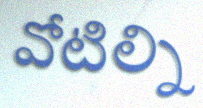
వోటిల్ని